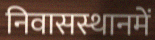
निवासस्थानमें